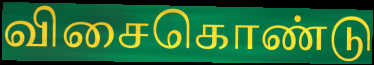
விசைகொண்டு